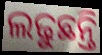
ଲଢୁଛନ୍ତି